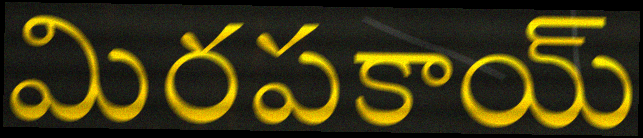
మిరపకాయ్